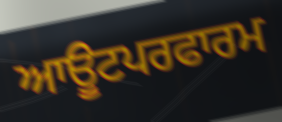
ਆਊਟਪਰਫਾਰਮ